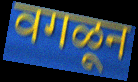
वगळून